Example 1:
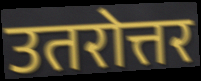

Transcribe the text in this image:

उतरोत्तर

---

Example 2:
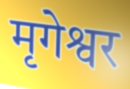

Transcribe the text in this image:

मृगेश्वर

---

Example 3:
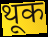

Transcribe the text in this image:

थूक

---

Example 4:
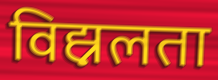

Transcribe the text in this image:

विह्नलता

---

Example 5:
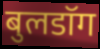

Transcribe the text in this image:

बुलडॉग